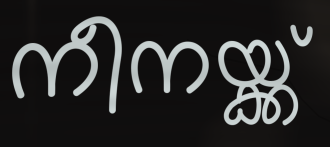
നീനയ്ക്ക്